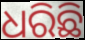
ଧରିଛି